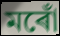
মৰোঁ